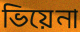
ভিয়েনা